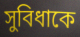
সুবিধাকে